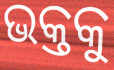
ଭକ୍ତକୁ